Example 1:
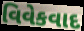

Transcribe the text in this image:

વિવેકવાદ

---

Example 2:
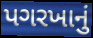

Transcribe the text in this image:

પગરખાનું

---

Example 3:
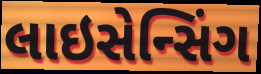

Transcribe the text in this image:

લાઇસેન્સિંગ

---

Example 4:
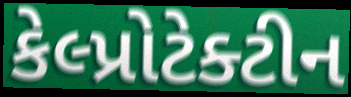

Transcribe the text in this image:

કેલ્પ્રોટેક્ટીન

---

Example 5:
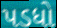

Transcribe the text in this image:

પડધો